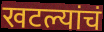
खटल्यांचं